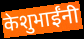
केशुभाईंनी